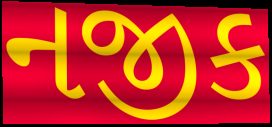
નજીક